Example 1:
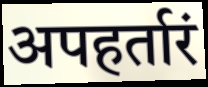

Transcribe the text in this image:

अपहर्तारं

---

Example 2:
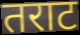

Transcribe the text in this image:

तराट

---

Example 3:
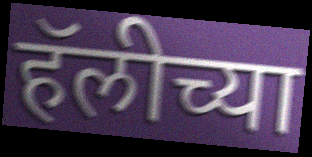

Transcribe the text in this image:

हॅलीच्या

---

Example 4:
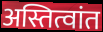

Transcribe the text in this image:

अस्तित्वांत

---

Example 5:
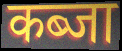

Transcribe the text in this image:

कब्जा